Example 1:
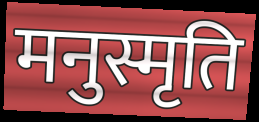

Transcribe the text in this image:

मनुस्मृति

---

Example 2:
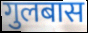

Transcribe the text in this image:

गुलबास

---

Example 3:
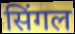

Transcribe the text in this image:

सिंगल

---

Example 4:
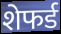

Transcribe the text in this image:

शेफर्ड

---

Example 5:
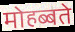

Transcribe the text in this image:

मोहब्बते